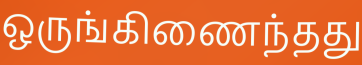
ஒருங்கிணைந்தது